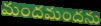
మందమందను